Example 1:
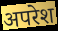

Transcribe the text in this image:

अपरेश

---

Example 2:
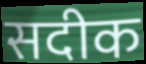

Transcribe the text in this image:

सदीक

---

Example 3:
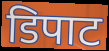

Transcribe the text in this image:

डिपाट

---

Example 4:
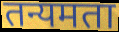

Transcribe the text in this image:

तन्यमता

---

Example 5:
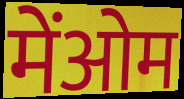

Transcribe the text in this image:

मेंओम